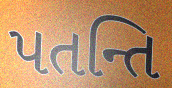
પતન્તિ